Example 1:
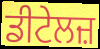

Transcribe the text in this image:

ਡੀਟੇਲਜ਼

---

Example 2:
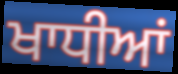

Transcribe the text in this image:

ਖਾਧੀਆਂ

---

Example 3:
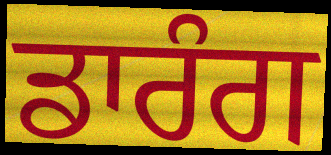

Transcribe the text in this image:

ਡਾਰੰਗ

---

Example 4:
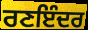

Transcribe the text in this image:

ਰਣਇੰਦਰ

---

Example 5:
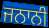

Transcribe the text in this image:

ਜਨਾਨੀ